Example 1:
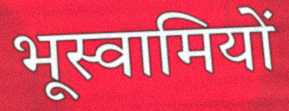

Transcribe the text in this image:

भूस्वामियों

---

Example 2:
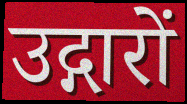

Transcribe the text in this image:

उद्गारों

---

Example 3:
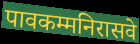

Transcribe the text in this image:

पावकम्मनिरासवे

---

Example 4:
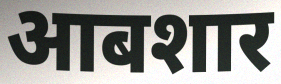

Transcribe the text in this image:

आबशार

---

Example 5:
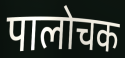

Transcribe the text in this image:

पालोचक